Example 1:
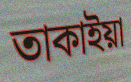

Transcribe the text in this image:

তাকাইয়া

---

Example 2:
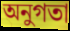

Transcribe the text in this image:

অনুগতা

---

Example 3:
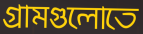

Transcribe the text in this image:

গ্রামগুলোতে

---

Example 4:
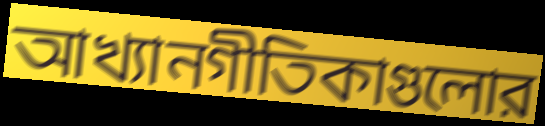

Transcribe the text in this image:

আখ্যানগীতিকাগুলোর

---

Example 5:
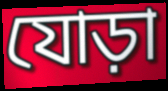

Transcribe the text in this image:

যোড়া